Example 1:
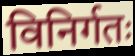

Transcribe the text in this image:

विनिर्गतः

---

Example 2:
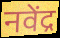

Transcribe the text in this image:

नवेंद्र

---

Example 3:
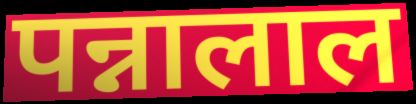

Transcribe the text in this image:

पन्नालाल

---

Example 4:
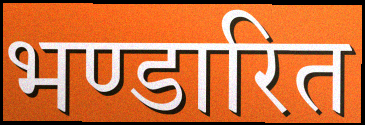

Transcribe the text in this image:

भण्डारित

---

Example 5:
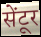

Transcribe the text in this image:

सेंटूर